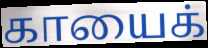
காயைக்